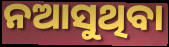
ନଆସୁଥିବା